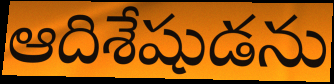
ఆదిశేషుడను